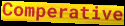
Comperative